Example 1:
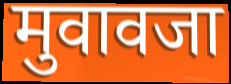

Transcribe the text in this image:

मुवावजा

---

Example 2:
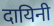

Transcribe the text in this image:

दायिनी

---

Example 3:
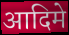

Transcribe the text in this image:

आदिमे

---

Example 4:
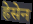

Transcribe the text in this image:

हेसेन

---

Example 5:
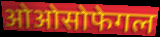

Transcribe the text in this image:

ओओसोफेगल